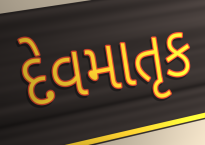
દેવમાતૃક